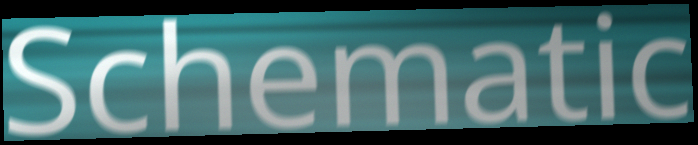
Schematic